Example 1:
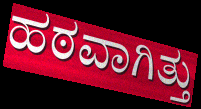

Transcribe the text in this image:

ಹಠವಾಗಿತ್ತು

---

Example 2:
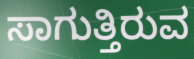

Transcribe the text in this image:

ಸಾಗುತ್ತಿರುವ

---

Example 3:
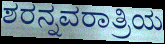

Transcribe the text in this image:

ಶರನ್ನವರಾತ್ರಿಯ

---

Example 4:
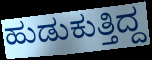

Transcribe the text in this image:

ಹುಡುಕುತ್ತಿದ್ದ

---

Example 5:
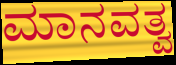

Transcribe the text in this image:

ಮಾನವತ್ವ